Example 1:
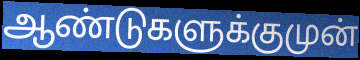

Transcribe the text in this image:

ஆண்டுகளுக்குமுன்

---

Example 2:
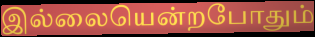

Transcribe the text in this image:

இல்லையென்றபோதும்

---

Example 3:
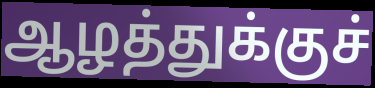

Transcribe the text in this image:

ஆழத்துக்குச்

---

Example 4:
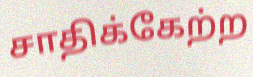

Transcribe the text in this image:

சாதிக்கேற்ற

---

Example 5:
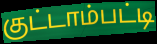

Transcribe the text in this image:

குட்டாம்பட்டி